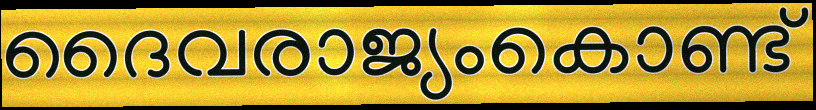
ദൈവരാജ്യംകൊണ്ട്